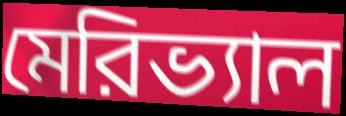
মেরিভ্যাল